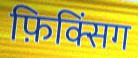
फ़िक्सिंग